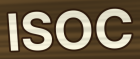
ISOC